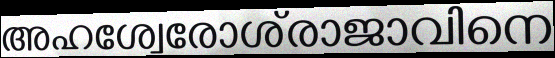
അഹശ്വേരോശ്‌രാജാവിനെ